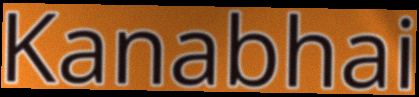
Kanabhai